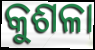
କୁଶଳା